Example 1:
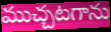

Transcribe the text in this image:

ముచ్చటగాను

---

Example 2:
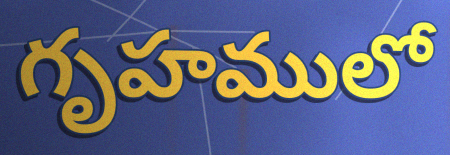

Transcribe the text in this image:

గృహములో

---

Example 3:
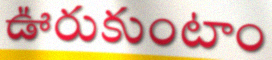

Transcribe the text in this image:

ఊరుకుంటాం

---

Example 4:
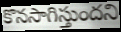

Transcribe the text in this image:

కొనసాగిస్తుందని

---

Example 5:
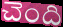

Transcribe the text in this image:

చెంది